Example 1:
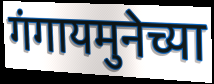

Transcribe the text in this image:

गंगायमुनेच्या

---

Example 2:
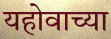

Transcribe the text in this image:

यहोवाच्या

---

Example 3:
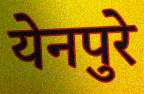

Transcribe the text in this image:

येनपुरे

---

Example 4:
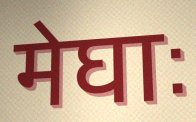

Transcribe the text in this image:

मेघाः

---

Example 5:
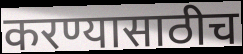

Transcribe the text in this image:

करण्यासाठीच